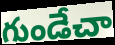
గుండేచా